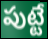
పుట్టే